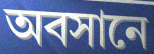
অবসানে